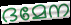
ദമേന